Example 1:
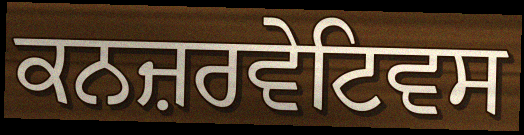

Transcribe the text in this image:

ਕਨਜ਼ਰਵੇਟਿਵਸ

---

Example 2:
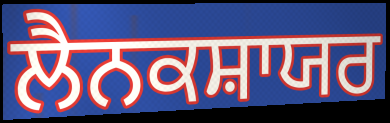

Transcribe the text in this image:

ਲੈਨਕਸ਼ਾਯਰ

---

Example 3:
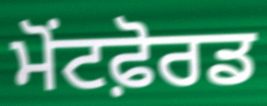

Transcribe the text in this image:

ਮੋਂਟਫ਼ੋਰਡ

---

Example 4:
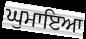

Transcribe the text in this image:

ਘੁਮਾਇਆ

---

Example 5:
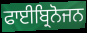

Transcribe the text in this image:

ਫਾਈਬ੍ਰਿਨੋਜਨ